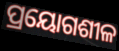
ପ୍ରୟୋଗଶୀଳ